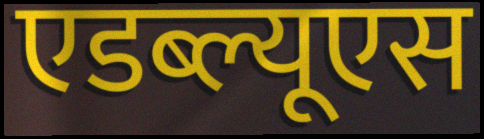
एडब्ल्यूएस